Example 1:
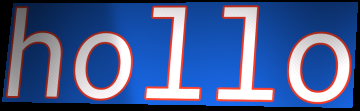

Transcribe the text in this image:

hollo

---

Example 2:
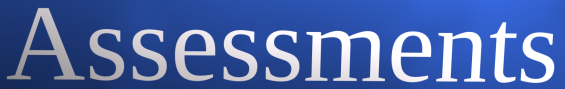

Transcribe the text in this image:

Assessments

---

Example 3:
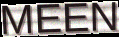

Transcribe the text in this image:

MEEN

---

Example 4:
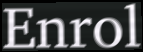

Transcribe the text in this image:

Enrol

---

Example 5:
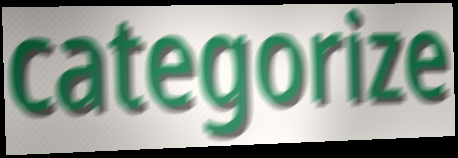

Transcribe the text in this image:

categorize